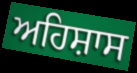
ਅਹਿਸ਼ਾਸ